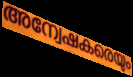
അന്വേഷകരെയും